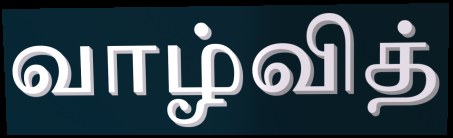
வாழ்வித்